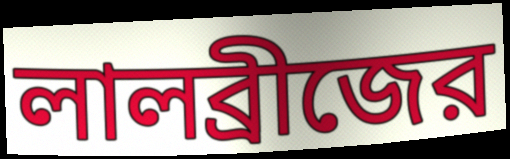
লালব্রীজের